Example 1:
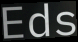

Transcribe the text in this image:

Eds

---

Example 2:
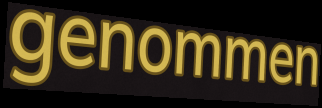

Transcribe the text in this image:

genommen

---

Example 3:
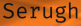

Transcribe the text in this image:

Serugh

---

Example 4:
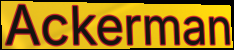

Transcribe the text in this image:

Ackerman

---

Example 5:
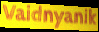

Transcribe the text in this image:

Vaidnyanik